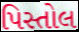
પિસ્તોલ